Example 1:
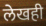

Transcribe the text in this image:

लेखही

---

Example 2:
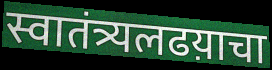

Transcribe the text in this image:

स्वातंत्र्यलढय़ाचा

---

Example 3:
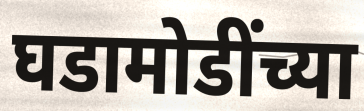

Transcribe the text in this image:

घडामोडींच्या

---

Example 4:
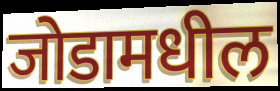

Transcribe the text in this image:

जोडामधील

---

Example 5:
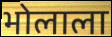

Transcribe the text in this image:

भोलाला